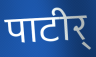
पाटीर्